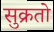
सुक्रतो